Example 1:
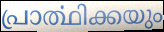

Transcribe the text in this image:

പ്രാൎത്ഥിക്കയും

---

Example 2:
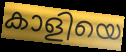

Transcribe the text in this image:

കാളിയെ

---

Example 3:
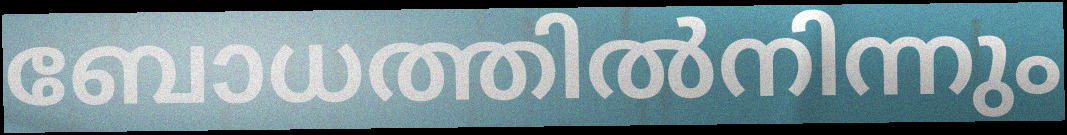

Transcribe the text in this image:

ബോധത്തിൽനിന്നും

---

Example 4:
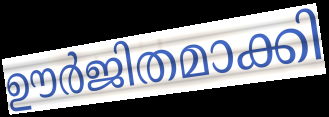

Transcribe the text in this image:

ഊർജിതമാക്കി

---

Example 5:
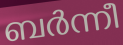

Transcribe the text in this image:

ബർന്നീ